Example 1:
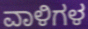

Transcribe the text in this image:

ವಾಳಿಗಳ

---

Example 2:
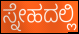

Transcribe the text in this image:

ಸ್ನೇಹದಲ್ಲಿ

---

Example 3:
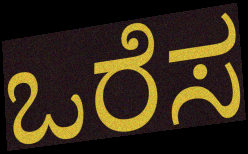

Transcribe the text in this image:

ಒರೆಸ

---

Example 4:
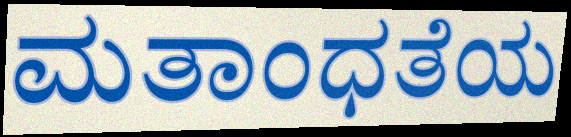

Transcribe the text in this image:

ಮತಾಂಧತೆಯ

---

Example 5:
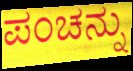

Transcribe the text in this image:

ಪಂಚನ್ನು